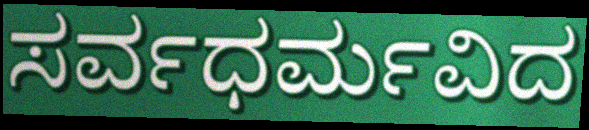
ಸರ್ವಧರ್ಮವಿದ